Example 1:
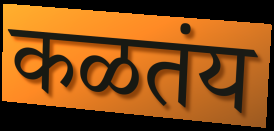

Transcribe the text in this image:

कळतंय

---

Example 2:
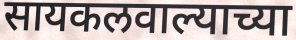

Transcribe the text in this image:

सायकलवाल्याच्या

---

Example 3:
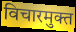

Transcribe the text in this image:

विचारमुक्त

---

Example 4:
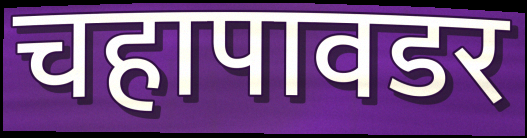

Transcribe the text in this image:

चहापावडर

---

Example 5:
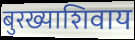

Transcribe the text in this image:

बुरख्याशिवाय